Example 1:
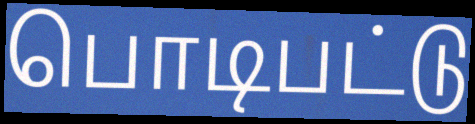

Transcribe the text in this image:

பொடிபட்டு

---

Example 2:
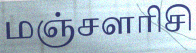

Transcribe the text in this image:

மஞ்சளரிசி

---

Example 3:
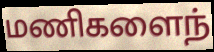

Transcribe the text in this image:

மணிகளைந்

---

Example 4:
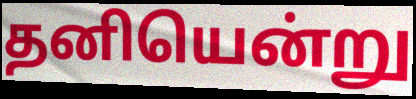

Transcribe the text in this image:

தனியென்று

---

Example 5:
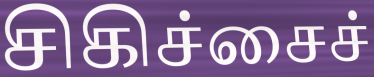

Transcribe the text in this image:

சிகிச்சைச்